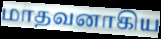
மாதவனாகிய